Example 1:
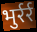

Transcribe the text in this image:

भुर्रर्र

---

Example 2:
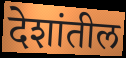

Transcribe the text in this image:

देशांतील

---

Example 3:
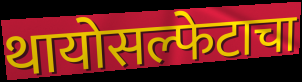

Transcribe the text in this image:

थायोसल्फेटाचा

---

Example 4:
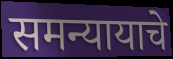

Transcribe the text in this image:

समन्यायाचे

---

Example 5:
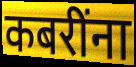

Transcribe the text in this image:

कबरींना